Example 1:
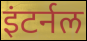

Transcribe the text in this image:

इंटर्नल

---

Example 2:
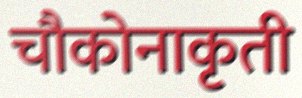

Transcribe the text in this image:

चौकोनाकृती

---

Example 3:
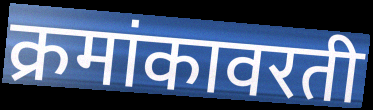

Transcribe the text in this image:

क्रमांकावरती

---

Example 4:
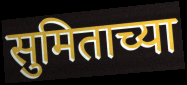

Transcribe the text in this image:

सुमिताच्या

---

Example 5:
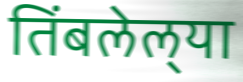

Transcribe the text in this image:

तिंबलेल्या